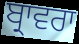
ਬ੍ਰਾਵਰਾ